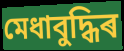
মেধাবুদ্ধিৰ